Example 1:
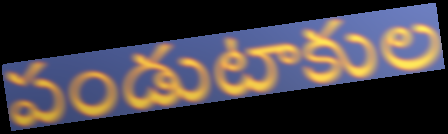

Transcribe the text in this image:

పండుటాకుల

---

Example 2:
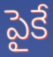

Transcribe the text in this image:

పైకే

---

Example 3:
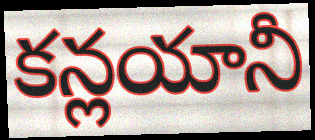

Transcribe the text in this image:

కన్లయానీ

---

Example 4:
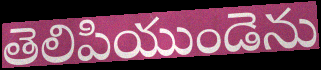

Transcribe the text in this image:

తెలిపియుండెను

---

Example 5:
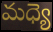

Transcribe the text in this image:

మధ్యె